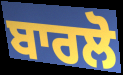
ਬਾਰਲੋ